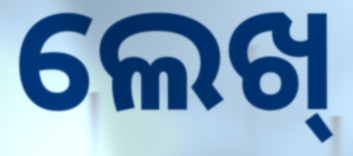
ଲେଖ୍